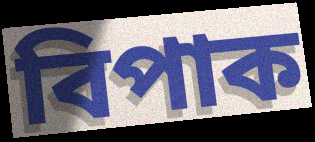
বিপাক